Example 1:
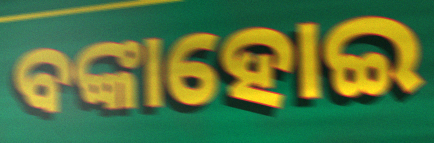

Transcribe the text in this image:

ବଙ୍କାହୋଇ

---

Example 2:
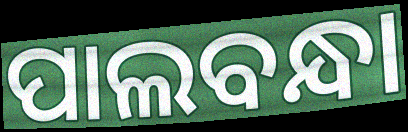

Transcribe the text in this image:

ପାଲବନ୍ଧା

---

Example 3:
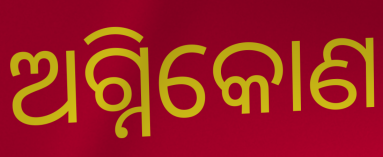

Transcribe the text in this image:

ଅଗ୍ନିକୋଣ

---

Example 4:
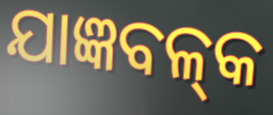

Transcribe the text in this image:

ଯାଜ୍ଞବଳ୍‍କ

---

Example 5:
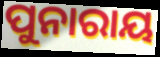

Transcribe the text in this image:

ପୁନାରାୟ